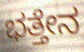
ಭತ್ತೇನ